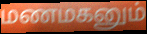
மணமகனும்